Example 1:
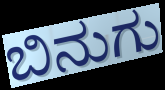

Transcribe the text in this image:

ಬಿನುಗು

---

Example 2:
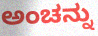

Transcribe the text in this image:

ಅಂಚನ್ನು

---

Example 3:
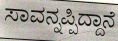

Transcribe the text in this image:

ಸಾವನ್ನಪ್ಪಿದ್ದಾನೆ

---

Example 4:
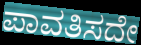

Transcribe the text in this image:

ಪಾವತಿಸದೇ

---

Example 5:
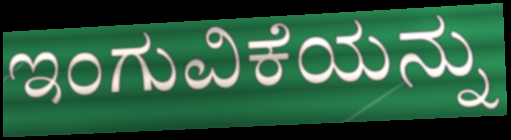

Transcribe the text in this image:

ಇಂಗುವಿಕೆಯನ್ನು